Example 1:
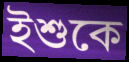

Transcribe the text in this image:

ইশুকে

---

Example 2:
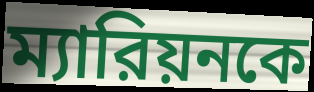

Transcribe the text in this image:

ম্যারিয়নকে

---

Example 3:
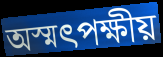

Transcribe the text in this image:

অস্মৎপক্ষীয়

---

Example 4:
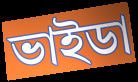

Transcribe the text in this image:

ভাইডা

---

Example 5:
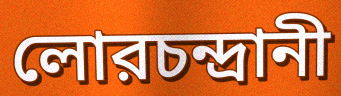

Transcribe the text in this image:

লোরচন্দ্রানী